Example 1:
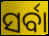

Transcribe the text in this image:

ସର୍ବା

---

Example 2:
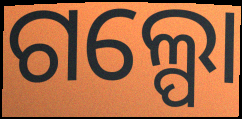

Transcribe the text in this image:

ଗଲ୍ପୋ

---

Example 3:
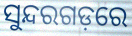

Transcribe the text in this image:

ସୁନ୍ଦରଗଡ଼ରେ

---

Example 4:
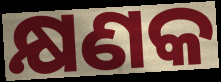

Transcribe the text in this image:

କ୍ଷଣକ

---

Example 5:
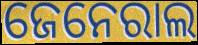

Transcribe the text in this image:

ଜେନେରାଲ